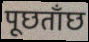
पूछताँछ